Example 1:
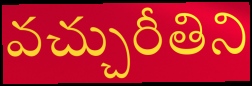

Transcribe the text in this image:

వచ్చురీతిని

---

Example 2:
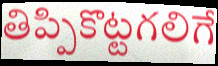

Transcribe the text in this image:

తిప్పికొట్టగలిగే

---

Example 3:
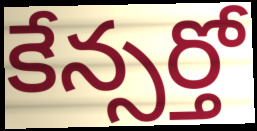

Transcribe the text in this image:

కేన్సర్తో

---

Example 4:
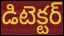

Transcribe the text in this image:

డిటెక్టర్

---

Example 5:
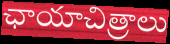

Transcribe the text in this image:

ఛాయాచిత్రాలు